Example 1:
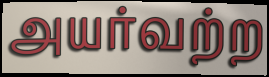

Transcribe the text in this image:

அயர்வற்ற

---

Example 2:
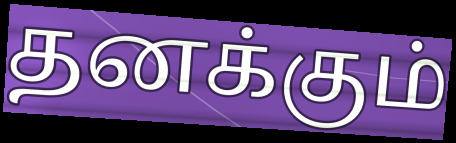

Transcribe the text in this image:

தனக்கும்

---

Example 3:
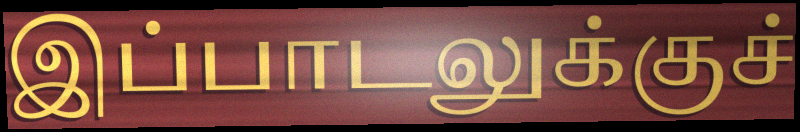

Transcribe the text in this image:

இப்பாடலுக்குச்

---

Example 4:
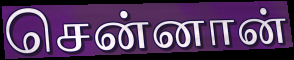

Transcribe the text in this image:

சென்னான்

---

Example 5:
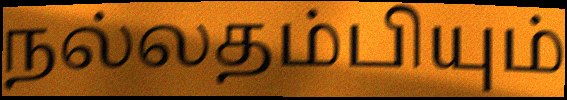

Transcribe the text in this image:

நல்லதம்பியும்